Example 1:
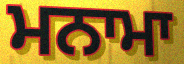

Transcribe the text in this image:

ਮਨਾਮਾ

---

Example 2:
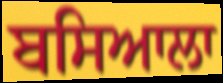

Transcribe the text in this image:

ਬਸਿਆਲਾ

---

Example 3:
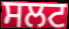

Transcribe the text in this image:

ਸਲਟ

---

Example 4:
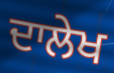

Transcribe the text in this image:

ਦਾਲੇਖ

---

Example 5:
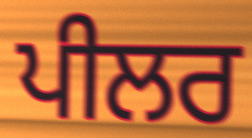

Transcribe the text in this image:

ਪੀਲਰ